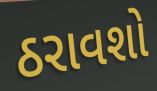
ઠરાવશો